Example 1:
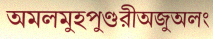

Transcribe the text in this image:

অমলমুহপুণ্ডরীঅজুঅলং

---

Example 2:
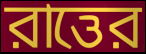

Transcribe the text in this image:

রাত্তের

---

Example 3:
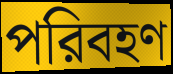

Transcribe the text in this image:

পরিবহণ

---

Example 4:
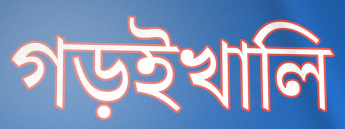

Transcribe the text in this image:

গড়ইখালি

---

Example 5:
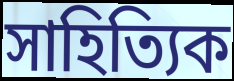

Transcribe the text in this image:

সাহিত্যিক